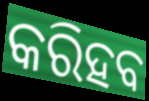
କରିହବ